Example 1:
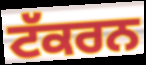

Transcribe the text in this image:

ਟੱਕਰਨ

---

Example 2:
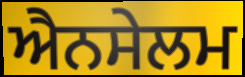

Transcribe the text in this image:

ਐਨਸੇਲਮ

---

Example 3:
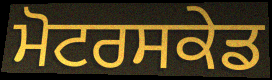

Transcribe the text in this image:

ਮੋਟਰਸਕੇਡ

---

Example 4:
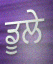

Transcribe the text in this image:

ਡੂਲੇ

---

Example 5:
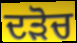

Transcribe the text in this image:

ਦੜੋਚ